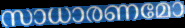
സാധാരണമോ